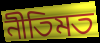
নীতিমত